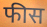
फीस